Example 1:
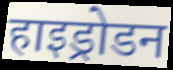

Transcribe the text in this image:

हाइड्रोडन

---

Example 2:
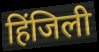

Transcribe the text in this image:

हिंजिली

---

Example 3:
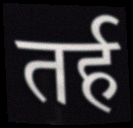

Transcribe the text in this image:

तर्ह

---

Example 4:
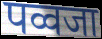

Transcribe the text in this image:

पव्वजा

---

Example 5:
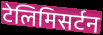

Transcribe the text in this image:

टेलिमिसर्टन